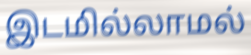
இடமில்லாமல்